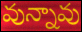
వున్నావు